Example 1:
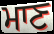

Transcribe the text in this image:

ਮਾਣ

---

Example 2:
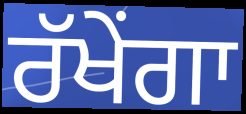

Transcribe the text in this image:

ਰੱਖੇਂਗਾ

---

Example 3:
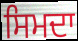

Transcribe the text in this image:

ਸਿਮਦਾ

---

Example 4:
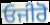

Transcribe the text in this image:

ਓਜੀਰੋ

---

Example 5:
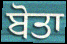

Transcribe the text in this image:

ਬੋਤਾ